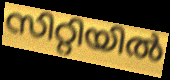
സിറ്റിയിൽ